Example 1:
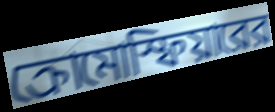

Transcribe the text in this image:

ক্রোমোস্ফিয়ারের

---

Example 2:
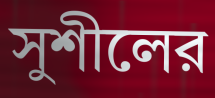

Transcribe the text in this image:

সুশীলের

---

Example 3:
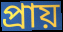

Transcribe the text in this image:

প্রায়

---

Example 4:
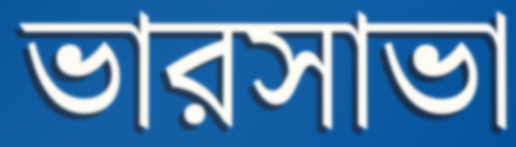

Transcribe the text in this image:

ভারসাভা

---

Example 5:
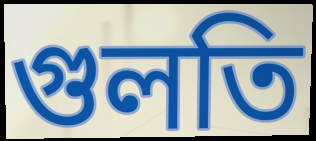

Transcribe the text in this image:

গুলতি